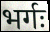
भर्गः